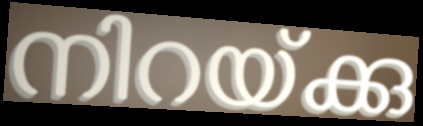
നിറയ്‌ക്കു